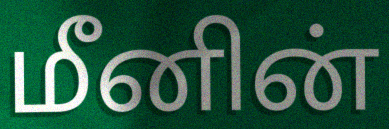
மீனின்